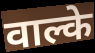
वाल्के